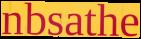
nbsathe